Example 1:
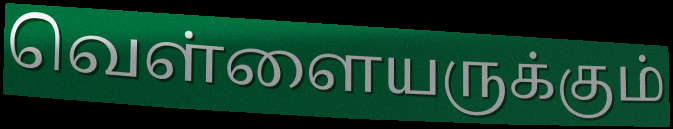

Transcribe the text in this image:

வெள்ளையருக்கும்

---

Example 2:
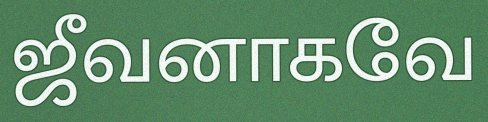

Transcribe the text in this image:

ஜீவனாகவே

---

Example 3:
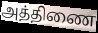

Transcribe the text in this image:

அத்திணை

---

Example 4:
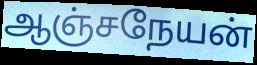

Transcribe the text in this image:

ஆஞ்சநேயன்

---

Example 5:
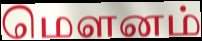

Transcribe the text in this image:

மௌனம்